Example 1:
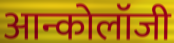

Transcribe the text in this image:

आन्कोलॉजी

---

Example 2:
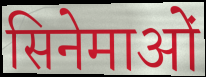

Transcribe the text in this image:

सिनेमाओं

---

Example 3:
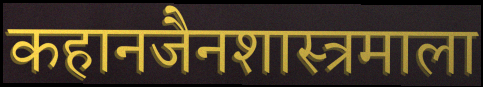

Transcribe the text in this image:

कहानजैनशास्त्रमाला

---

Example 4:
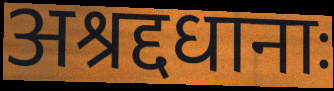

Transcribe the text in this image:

अश्रद्दधानाः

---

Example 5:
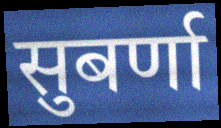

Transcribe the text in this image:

सुबर्णा